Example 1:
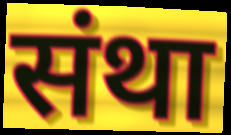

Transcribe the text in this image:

संथा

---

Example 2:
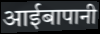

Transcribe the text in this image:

आईबापानी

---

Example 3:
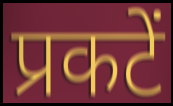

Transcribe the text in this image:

प्रकटें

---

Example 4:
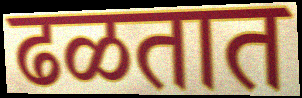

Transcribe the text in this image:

ढळतात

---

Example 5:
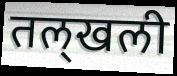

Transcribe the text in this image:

तल्खली